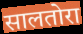
सालतोरा